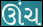
ઊંચ